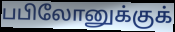
பபிலோனுக்குக்